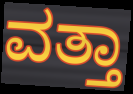
ವತ್ತಾ